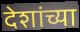
देशांच्या